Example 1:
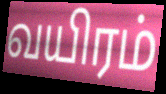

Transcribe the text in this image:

வயிரம்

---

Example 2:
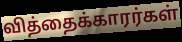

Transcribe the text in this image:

வித்தைக்காரர்கள்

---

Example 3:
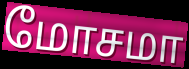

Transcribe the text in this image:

மோசமா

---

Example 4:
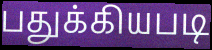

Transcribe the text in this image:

பதுக்கியபடி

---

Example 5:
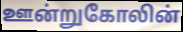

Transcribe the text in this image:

ஊன்றுகோலின்